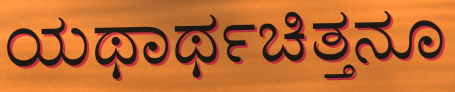
ಯಥಾರ್ಥಚಿತ್ತನೂ